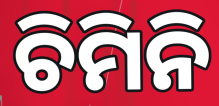
ଚିମିନି